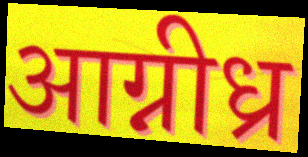
आग्नीध्र